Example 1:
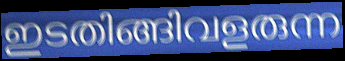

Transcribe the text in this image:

ഇടതിങ്ങിവളരുന്ന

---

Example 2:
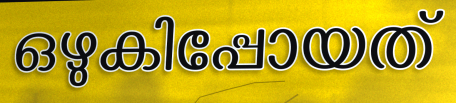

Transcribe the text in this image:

ഒഴുകിപ്പോയത്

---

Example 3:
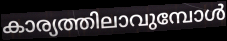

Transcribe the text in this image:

കാര്യത്തിലാവുമ്പോൾ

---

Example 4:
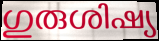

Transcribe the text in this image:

ഗുരുശിഷ്യ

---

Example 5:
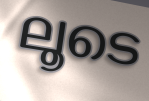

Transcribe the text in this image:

ലൂടെ